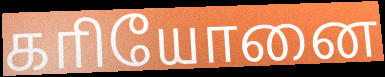
கரியோனை